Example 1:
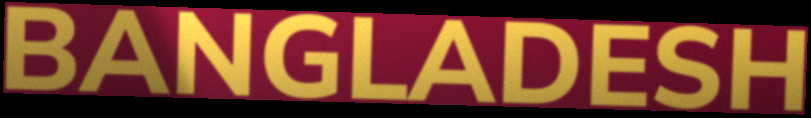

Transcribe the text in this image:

BANGLADESH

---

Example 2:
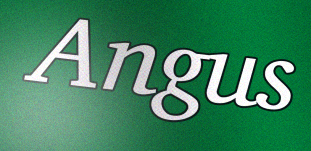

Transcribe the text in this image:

Angus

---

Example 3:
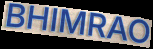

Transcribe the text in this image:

BHIMRAO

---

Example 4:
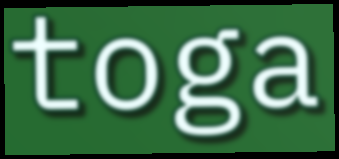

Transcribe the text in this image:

toga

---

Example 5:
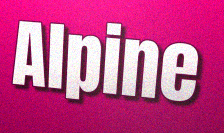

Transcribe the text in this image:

Alpine